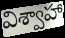
విశ్వాహా